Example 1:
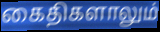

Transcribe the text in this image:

கைதிகளாலும்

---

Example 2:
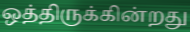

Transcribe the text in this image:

ஒத்திருக்கின்றது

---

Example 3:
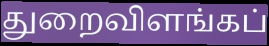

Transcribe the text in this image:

துறைவிளங்கப்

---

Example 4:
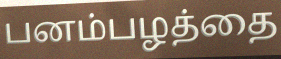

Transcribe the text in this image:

பனம்பழத்தை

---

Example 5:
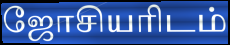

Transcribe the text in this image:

ஜோசியரிடம்